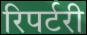
रिपर्टरी